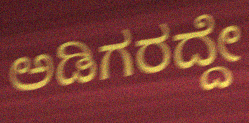
ಅಡಿಗರದ್ದೇ